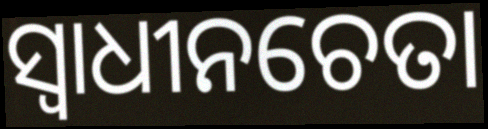
ସ୍ବାଧୀନଚେତା